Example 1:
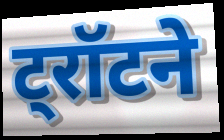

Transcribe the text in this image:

ट्रॉटने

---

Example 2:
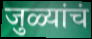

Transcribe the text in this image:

जुळ्यांचं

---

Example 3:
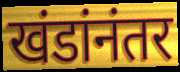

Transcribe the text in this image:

खंडांनंतर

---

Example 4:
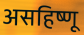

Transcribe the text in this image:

असहिष्णू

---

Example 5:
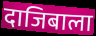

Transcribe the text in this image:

दाजिबाला